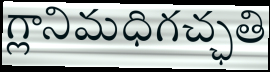
గ్లానిమధిగచ్ఛతి